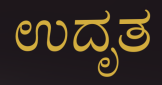
ಉದೃತ